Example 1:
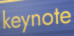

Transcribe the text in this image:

keynote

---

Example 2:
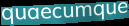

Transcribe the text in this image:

quaecumque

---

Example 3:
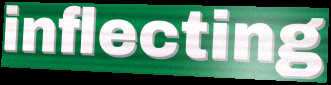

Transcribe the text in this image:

inflecting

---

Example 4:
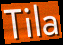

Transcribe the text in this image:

Tila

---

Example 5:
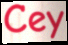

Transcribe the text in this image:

Cey